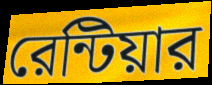
রেন্টিয়ার